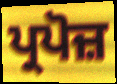
ਪ੍ਰਪੋਜ਼